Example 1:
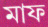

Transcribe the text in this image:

মাফ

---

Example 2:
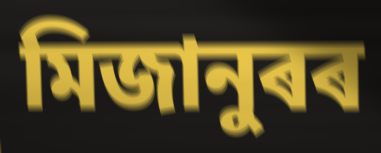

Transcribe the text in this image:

মিজানুৰৰ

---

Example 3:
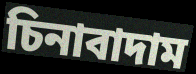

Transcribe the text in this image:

চিনাবাদাম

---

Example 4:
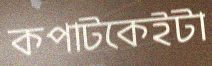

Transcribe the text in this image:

কপাটকেইটা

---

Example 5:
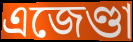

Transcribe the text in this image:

এজেণ্ডা